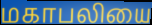
மகாபலியை